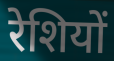
रेशियों